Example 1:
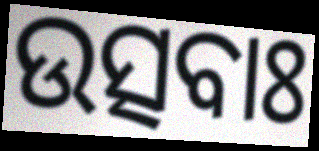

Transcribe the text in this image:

ଉତ୍ସବାଃ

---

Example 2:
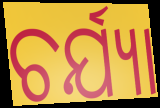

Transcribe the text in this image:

ଚର୍ଯ୍ଯା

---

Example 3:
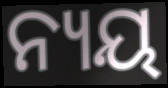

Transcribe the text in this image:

ନ୍ୟୟ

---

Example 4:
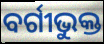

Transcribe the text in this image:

ବର୍ଗୀଭୁକ୍ତ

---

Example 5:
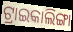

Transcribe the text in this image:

ଟ୍ରାଇକାଲିଙ୍ଗା